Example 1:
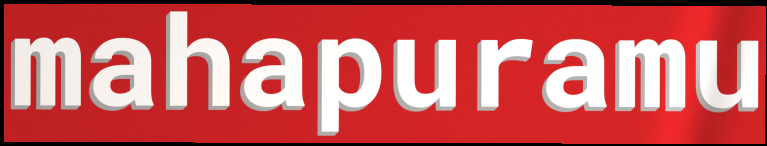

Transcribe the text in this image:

mahapuramu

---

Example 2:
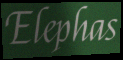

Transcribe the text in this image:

Elephas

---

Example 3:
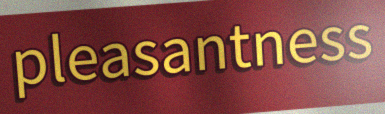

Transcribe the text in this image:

pleasantness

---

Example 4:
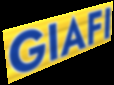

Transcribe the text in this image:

GIAFI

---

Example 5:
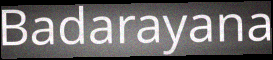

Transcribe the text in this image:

Badarayana